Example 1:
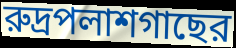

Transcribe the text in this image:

রুদ্রপলাশগাছের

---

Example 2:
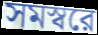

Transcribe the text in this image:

সমস্বরে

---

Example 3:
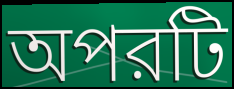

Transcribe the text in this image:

অপরটি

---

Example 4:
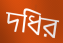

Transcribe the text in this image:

দধির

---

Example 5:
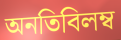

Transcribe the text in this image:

অনতিবিলম্ব